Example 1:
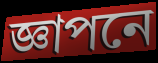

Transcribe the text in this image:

জ্ঞাপনে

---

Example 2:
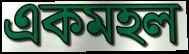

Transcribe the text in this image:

একমহল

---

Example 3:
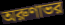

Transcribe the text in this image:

অরুণাভর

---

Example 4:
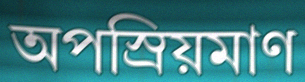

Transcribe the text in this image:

অপস্রিয়মাণ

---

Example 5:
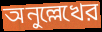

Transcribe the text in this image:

অনুল্লেখের